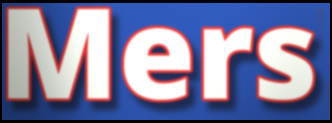
Mers